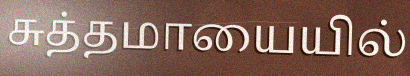
சுத்தமாயையில்